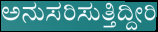
ಅನುಸರಿಸುತ್ತಿದ್ದೀರಿ